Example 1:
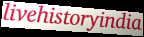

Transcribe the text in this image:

livehistoryindia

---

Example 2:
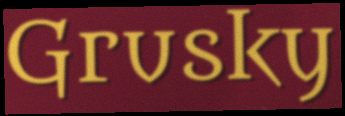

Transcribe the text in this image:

Grusky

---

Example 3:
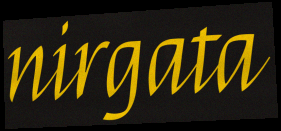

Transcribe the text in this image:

nirgata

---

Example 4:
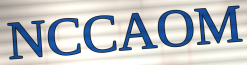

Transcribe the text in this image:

NCCAOM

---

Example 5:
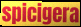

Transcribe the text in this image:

spicigera